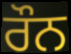
ਰੌਨ